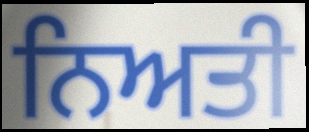
ਨਿਅਤੀ